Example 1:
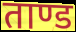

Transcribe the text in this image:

ताण्ड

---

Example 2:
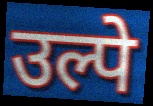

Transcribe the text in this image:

उल्पे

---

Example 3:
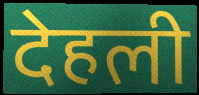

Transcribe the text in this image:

देहली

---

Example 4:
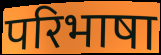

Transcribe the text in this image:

परिभाषा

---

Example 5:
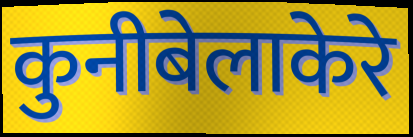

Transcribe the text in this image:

कुनीबेलाकेरे